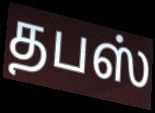
தபஸ்